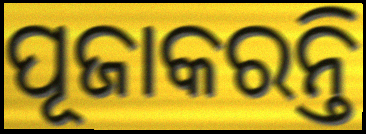
ପୂଜାକରନ୍ତି